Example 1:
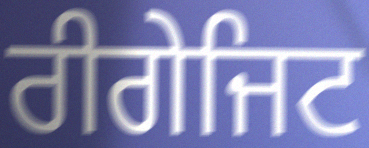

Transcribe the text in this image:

ਰੀਗੇਜਿਟ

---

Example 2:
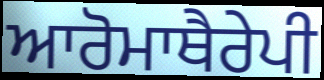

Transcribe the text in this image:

ਆਰੋਮਾਥੈਰੇਪੀ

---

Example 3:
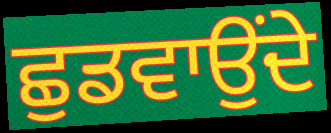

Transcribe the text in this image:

ਛੁਡਵਾਉਂਦੇ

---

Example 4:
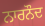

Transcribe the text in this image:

ਨਾਰਨੌਦ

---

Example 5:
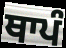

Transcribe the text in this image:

ਥਾਪੰ